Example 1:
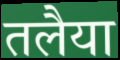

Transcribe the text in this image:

तलैया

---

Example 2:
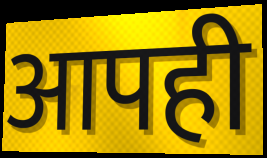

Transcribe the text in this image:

आपही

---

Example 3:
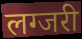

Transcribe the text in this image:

लग्जरी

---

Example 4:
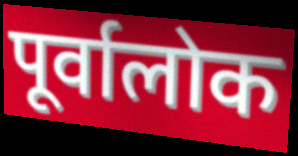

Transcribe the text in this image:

पूर्वालोक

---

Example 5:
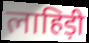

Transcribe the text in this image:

लाहिड़ी